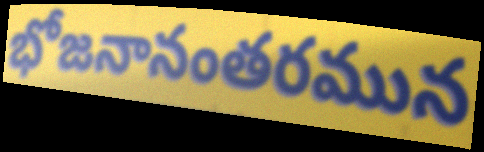
భోజనానంతరమున